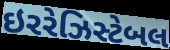
ઇરરેઝિસ્ટેબલ